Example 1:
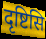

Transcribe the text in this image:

दृष्टिसि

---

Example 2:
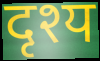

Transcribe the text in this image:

दृश्य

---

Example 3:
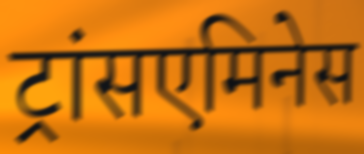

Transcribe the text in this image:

ट्रांसएमिनेस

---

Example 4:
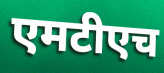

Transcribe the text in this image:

एमटीएच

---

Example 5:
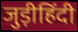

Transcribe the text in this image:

जुड़ीहिंदी